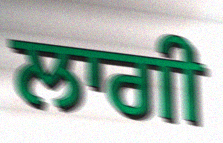
ਲਾਗੀ